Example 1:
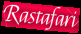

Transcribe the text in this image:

Rastafari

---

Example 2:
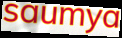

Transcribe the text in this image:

saumya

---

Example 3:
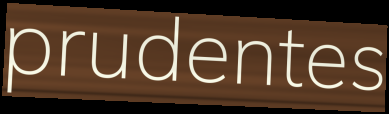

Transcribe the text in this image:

prudentes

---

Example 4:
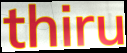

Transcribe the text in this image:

thiru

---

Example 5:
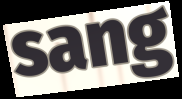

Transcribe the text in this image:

sang